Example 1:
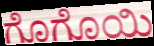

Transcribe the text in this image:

ಗೊಗೊಯಿ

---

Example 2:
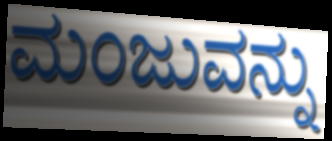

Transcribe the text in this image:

ಮಂಜುವನ್ನು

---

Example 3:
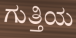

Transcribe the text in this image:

ಗುತ್ತಿಯ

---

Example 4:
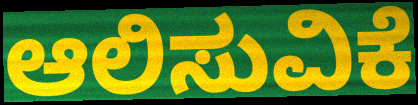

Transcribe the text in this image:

ಆಲಿಸುವಿಕೆ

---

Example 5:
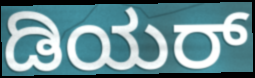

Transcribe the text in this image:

ಡಿಯರ್